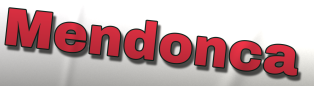
Mendonca